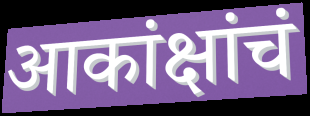
आकांक्षांचं